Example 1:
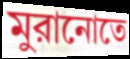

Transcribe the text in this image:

মুরানোতে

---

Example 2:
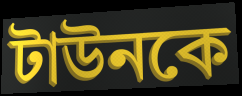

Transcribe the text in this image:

টাউনকে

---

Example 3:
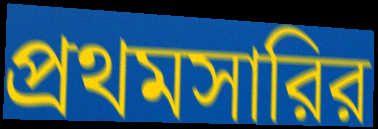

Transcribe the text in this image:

প্রথমসারির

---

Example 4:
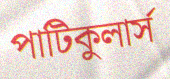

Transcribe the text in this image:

পাটিকুলার্স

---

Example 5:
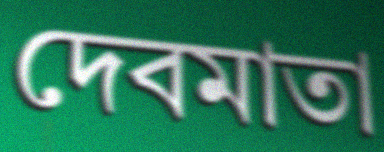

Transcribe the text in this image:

দেবমাতা